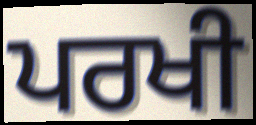
ਪਰਖੀ